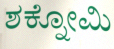
ಶಕ್ನೋಮಿ